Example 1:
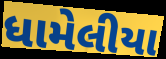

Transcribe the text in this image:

ધામેલીયા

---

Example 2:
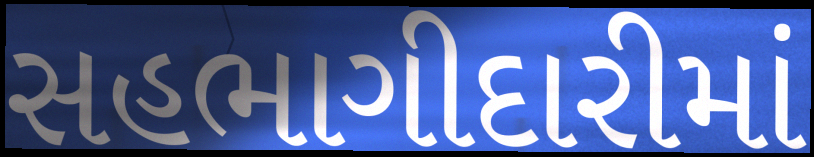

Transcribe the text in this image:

સહભાગીદારીમાં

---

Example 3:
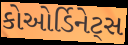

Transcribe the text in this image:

કોઓર્ડિનેટ્સ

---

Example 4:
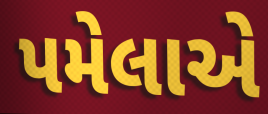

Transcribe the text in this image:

પમેલાએ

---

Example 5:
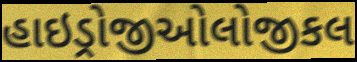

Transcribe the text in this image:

હાઇડ્રોજીઓલોજીકલ